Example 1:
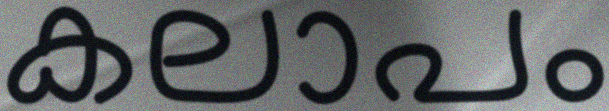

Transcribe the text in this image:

കലാപം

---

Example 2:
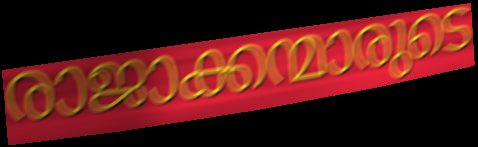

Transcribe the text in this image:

രാജാക്കന്മാരുടെ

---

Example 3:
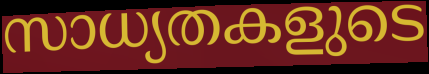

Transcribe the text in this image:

സാധ്യതകളുടെ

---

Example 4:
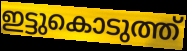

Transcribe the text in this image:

ഇട്ടുകൊടുത്ത്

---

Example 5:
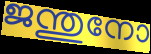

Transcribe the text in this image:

ജന്തുനോ